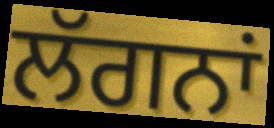
ਲੱਗਨਾਂ